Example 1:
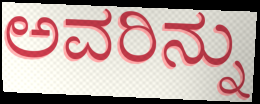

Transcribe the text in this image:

ಅವರಿನ್ನು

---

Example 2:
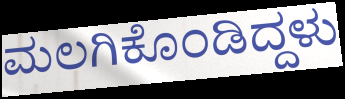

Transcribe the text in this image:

ಮಲಗಿಕೊಂಡಿದ್ದಳು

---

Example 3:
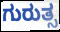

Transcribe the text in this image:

ಗುರುತ್ಸ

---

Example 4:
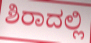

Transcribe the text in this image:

ಶಿರಾದಲ್ಲಿ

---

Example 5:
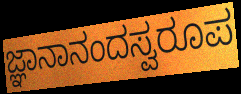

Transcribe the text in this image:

ಜ್ಞಾನಾನಂದಸ್ವರೂಪ